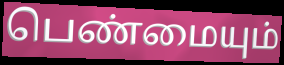
பெண்மையும்